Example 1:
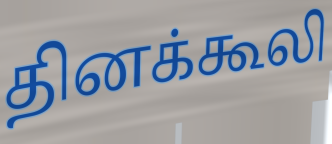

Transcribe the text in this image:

தினக்கூலி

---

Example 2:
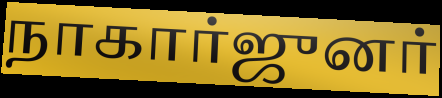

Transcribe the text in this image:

நாகார்ஜுனர்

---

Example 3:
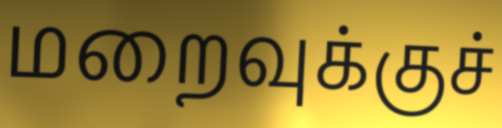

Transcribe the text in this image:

மறைவுக்குச்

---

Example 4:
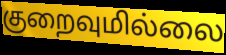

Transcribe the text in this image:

குறைவுமில்லை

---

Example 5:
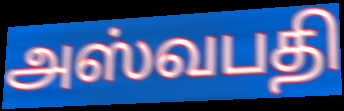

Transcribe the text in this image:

அஸ்வபதி